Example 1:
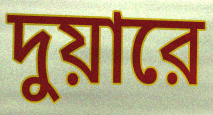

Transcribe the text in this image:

দুয়ারে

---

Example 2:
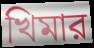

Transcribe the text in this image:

খিমার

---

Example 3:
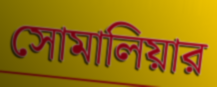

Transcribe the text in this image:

সোমালিয়ার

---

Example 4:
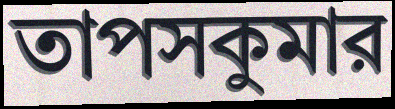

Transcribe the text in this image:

তাপসকুমার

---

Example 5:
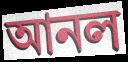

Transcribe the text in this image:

আনল